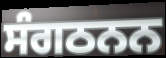
ਸੰਗਠਨਨ